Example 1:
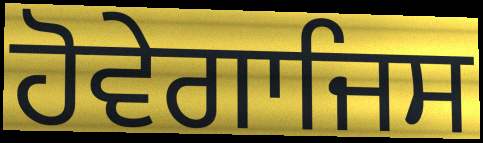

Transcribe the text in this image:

ਹੋਵੇਗਾਜਿਸ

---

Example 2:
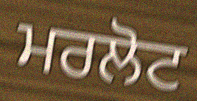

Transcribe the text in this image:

ਮਰਲੋਟ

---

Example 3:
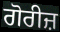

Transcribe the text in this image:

ਗੋਰੀਜ਼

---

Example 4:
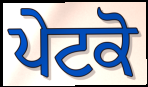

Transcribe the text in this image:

ਪੇਟਕੋ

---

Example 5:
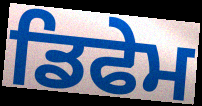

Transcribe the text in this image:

ਡਿਫੇਮ